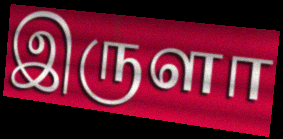
இருளா